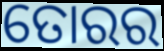
ତୋରର